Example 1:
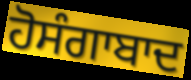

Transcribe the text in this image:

ਹੋਸੰਗਾਬਾਦ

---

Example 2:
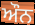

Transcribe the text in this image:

ਔਨ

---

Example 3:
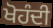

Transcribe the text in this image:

ਖੋਹੰਦੀ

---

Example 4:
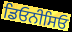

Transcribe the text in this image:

ਡਿਓਨੀਸਿਓ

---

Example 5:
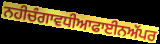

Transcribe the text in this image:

ਨਹੀਚੰਗਾਵਧੀਆਫਾਈਨਅੱਪਰ